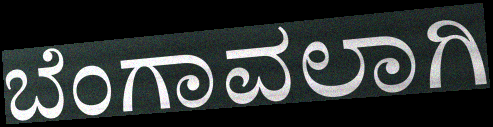
ಬೆಂಗಾವಲಾಗಿ